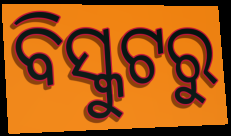
ବିସ୍କୁଟରୁ